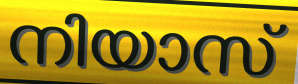
നിയാസ്